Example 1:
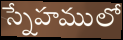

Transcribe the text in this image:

స్నేహములో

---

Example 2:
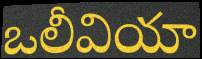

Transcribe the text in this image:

ఒలీవియా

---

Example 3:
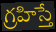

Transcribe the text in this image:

గ్రహిస్తే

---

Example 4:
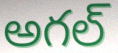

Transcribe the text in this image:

అగల్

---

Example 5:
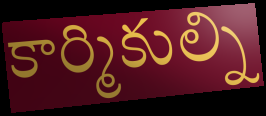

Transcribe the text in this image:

కార్మికుల్ని